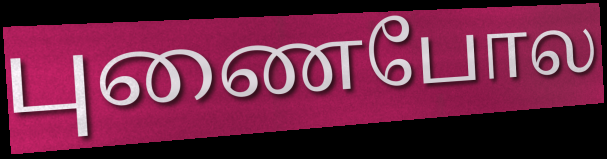
புணைபோல